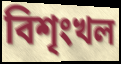
বিশৃংখল